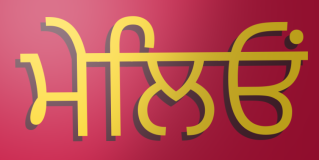
ਮੇਲਿਓਂ